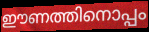
ഈണത്തിനൊപ്പം